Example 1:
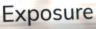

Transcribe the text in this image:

Exposure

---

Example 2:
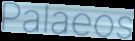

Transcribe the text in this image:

Palaeos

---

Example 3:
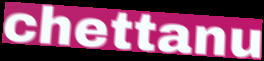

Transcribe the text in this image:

chettanu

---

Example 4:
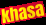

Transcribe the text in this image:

khasa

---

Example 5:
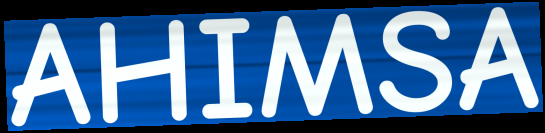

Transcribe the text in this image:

AHIMSA